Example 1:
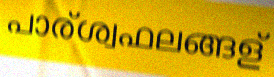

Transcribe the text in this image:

പാര്ശ്വഫലങ്ങള്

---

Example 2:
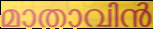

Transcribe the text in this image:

മാതാവിൻ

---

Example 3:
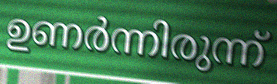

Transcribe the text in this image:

ഉണർന്നിരുന്ന്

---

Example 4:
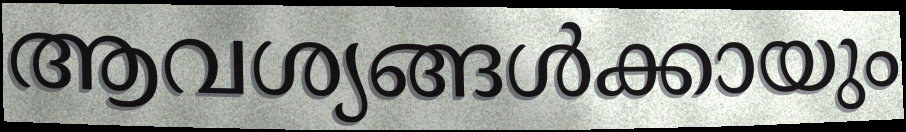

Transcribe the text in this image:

ആവശ്യങ്ങൾക്കായും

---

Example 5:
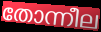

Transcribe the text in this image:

തോന്നീല